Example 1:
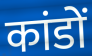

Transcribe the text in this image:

कांडों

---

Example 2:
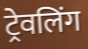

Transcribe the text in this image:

ट्रेवलिंग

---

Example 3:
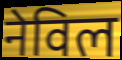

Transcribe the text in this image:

नेविल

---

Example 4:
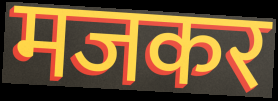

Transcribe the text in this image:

मजकर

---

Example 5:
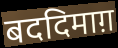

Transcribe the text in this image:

बददिमाग़